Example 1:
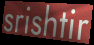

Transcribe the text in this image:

srishtir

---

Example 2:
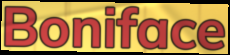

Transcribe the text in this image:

Boniface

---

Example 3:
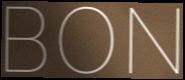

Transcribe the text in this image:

BON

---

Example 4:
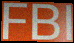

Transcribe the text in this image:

FBI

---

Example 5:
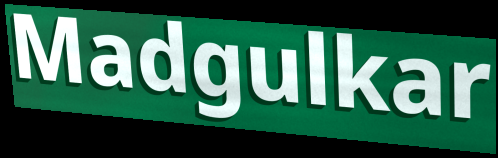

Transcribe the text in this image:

Madgulkar